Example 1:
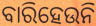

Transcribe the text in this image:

ବାରିହେଉନି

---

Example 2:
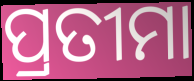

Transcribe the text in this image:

ପ୍ରତୀମା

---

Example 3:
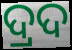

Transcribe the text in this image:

ଦ୍ରଦ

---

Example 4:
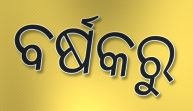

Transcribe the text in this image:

ବର୍ଷକରୁ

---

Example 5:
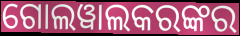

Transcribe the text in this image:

ଗୋଲୱାଲକରଙ୍କର